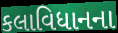
કલાવિધાનના